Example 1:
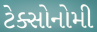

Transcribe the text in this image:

ટેક્સોનોમી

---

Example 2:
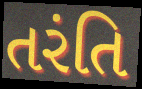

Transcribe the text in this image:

તરંતિ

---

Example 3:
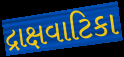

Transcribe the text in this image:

દ્રાક્ષવાટિકા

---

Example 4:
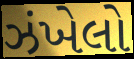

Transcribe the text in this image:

ઝંખેલો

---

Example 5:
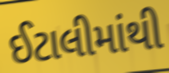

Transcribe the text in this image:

ઈટાલીમાંથી